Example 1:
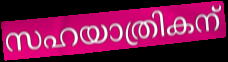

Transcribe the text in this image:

സഹയാത്രികന്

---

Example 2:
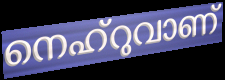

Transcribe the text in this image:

നെഹ്റുവാണ്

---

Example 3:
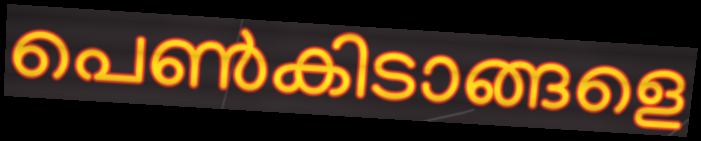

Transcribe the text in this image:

പെൺകിടാങ്ങളെ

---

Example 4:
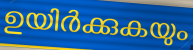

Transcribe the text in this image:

ഉയിർക്കുകയും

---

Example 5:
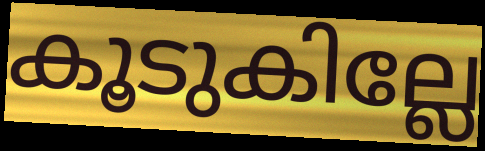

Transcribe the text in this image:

കൂടുകില്ലേ